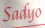
Sadyo